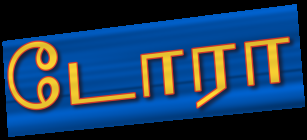
டோரா